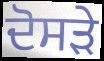
ਦੋਸੜੇ